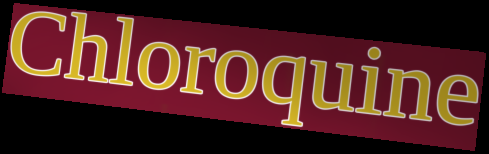
Chloroquine